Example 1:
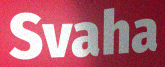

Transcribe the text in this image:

Svaha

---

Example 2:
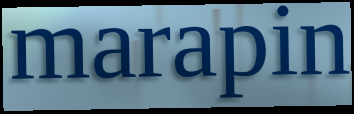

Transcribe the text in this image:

marapin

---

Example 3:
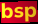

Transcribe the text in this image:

bsp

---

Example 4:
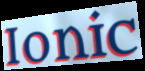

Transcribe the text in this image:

Ionic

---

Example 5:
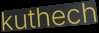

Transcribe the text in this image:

kuthech